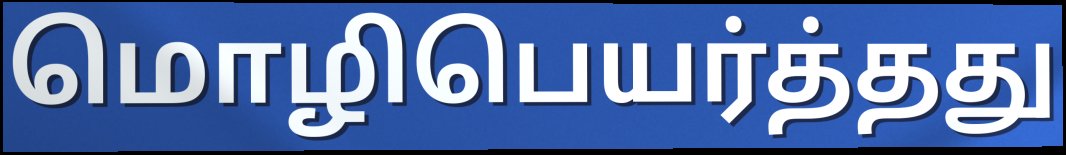
மொழிபெயர்த்தது